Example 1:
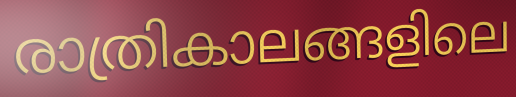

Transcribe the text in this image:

രാത്രികാലങ്ങളിലെ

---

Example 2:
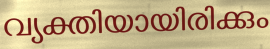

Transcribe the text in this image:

വ്യക്തിയായിരിക്കും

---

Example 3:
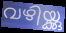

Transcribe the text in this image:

വഴിയ്ക്കു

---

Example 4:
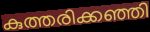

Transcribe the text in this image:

കുത്തരിക്കഞ്ഞി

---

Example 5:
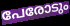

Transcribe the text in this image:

പേരോടും